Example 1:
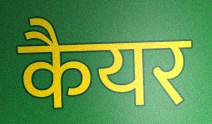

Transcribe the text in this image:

कैयर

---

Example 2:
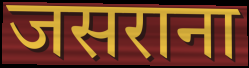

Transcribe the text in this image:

जसराना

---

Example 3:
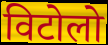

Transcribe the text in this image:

विटोलो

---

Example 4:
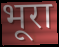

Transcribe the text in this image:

भूरा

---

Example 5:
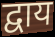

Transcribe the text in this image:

द्वाय